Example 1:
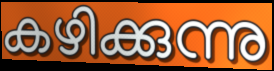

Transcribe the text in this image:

കഴിക്കുന്നു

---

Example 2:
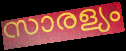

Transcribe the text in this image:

സാരള്യം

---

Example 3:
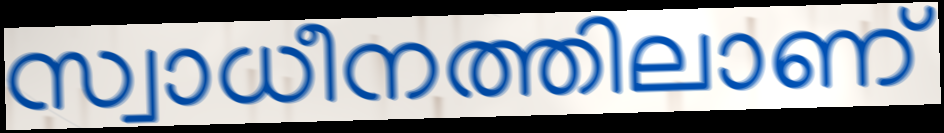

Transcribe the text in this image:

സ്വാധീനത്തിലാണ്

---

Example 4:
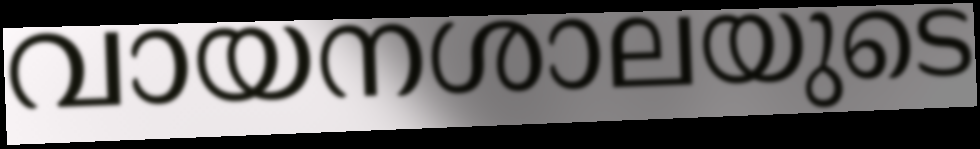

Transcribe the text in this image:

വായനശാലയുടെ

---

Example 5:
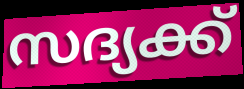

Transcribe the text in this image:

സദ്യക്ക്